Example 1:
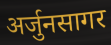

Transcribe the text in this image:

अर्जुनसागर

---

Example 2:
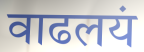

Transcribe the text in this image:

वाढलयं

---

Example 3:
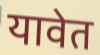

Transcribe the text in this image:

यावेत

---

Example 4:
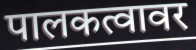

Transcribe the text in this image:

पालकत्वावर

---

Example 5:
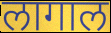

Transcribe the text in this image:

लागाल